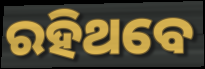
ରହିଥବେ